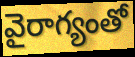
వైరాగ్యంతో